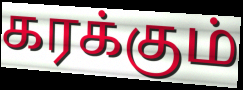
கரக்கும்